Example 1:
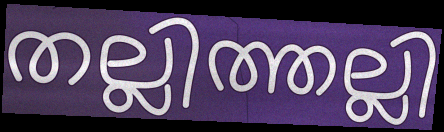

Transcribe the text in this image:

തല്ലിത്തല്ലി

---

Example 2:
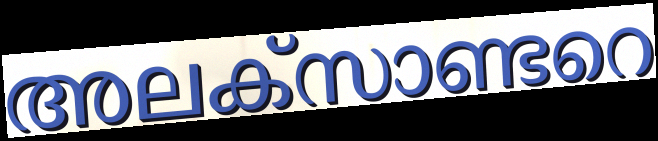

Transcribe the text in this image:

അലക്സാണ്ടറെ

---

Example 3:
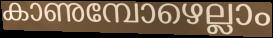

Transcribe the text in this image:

കാണുമ്പോഴെല്ലാം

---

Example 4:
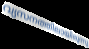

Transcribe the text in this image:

വ്യസനത്തിലായിരുന്നു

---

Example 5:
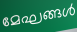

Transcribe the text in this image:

മേഘങ്ങൾ